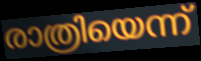
രാത്രിയെന്ന്